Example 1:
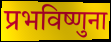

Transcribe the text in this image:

प्रभविष्णुना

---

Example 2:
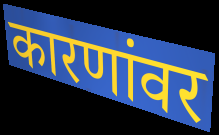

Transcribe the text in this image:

कारणांवर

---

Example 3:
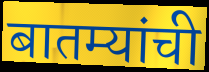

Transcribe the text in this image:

बातम्यांची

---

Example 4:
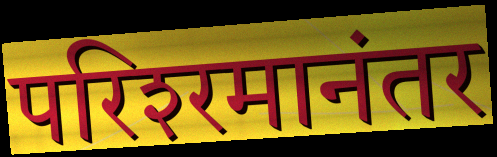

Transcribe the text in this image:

परिश्रमानंतर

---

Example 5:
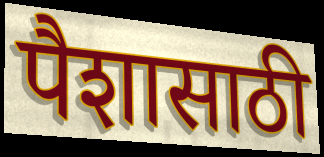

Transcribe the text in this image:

पैशासाठी